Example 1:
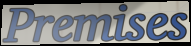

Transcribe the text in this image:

Premises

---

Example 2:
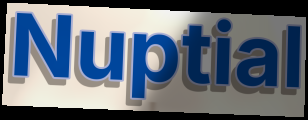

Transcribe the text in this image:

Nuptial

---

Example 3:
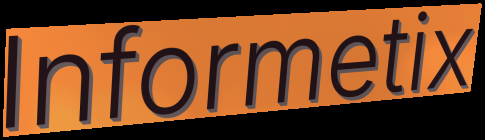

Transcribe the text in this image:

Informetix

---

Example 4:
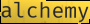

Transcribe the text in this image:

alchemy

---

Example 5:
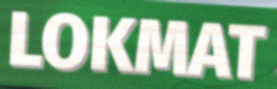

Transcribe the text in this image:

LOKMAT